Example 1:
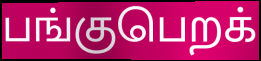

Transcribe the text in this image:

பங்குபெறக்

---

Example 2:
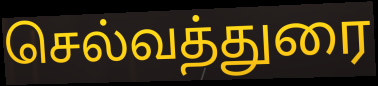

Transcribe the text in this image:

செல்வத்துரை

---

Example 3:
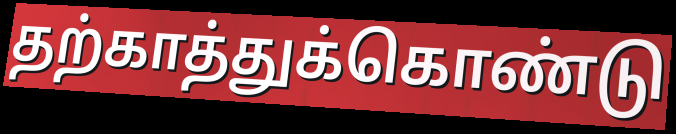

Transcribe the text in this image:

தற்காத்துக்கொண்டு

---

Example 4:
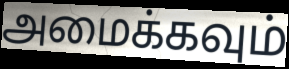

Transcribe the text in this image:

அமைக்கவும்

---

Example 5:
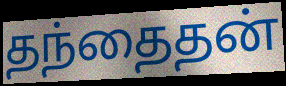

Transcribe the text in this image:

தந்தைதன்